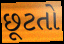
છૂટતો